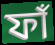
ফাঁ